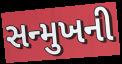
સન્મુખની